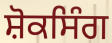
ਸ਼ੋਕਸਿੰਗ